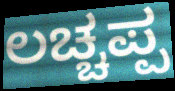
ಲಚ್ಚಪ್ಪ